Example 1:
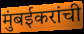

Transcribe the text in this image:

मुंबईकरांची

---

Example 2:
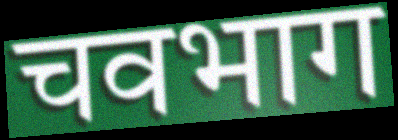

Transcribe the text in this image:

चवभाग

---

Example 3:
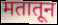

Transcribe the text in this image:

मतातून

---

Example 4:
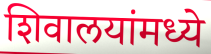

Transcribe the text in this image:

शिवालयांमध्ये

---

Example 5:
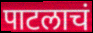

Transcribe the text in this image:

पाटलाचं